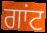
ਗਾਂਟ